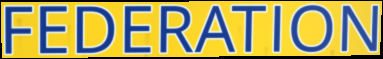
FEDERATION